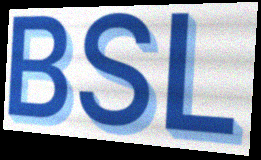
BSL